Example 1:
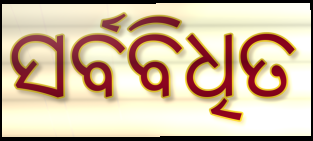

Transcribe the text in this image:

ସର୍ବବିଧିତ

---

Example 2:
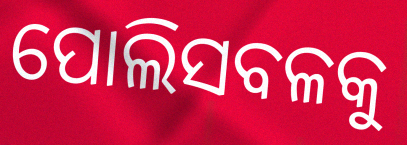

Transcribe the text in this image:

ପୋଲିସବଳକୁ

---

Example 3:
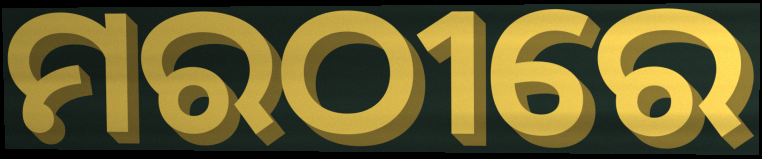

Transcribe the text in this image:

ମରଠୀରେ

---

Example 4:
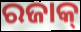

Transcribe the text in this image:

ରଜାକ୍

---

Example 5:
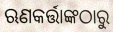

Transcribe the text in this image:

ଋଣକର୍ତ୍ତାଙ୍କଠାରୁ